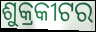
ଶୁକ୍ରକୀଟର